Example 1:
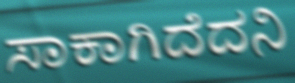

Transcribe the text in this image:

ಸಾಕಾಗಿದೆದನಿ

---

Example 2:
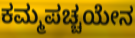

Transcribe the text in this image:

ಕಮ್ಮಪಚ್ಚಯೇನ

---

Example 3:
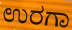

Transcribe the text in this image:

ಉರಗಾ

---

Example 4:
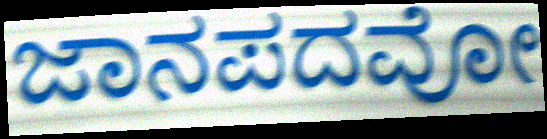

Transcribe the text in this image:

ಜಾನಪದವೋ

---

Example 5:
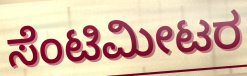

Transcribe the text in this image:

ಸೆಂಟಿಮೀಟರ